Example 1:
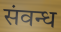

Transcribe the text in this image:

संवन्ध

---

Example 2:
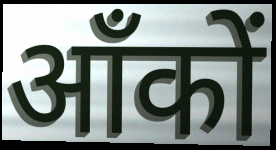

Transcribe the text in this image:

आँकों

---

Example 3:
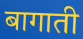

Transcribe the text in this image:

बागाती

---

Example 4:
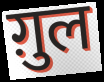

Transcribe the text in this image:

ग़ुल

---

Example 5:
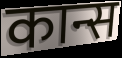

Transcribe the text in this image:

कान्‍स